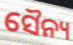
ସୈନ୍ୟ